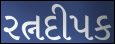
રત્નદીપક